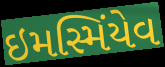
ઇમસ્મિંયેવ